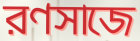
রণসাজে